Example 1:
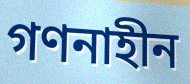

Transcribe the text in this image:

গণনাহীন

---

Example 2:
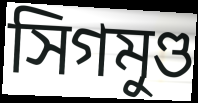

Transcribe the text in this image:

সিগমুণ্ড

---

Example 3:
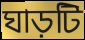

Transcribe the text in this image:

ঘাড়টি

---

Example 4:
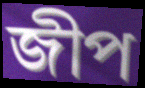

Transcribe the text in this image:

জীপ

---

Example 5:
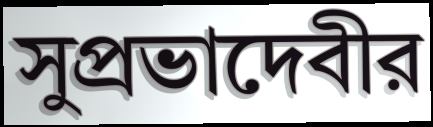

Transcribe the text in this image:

সুপ্রভাদেবীর